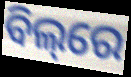
ବିଲ୍‌ରେ